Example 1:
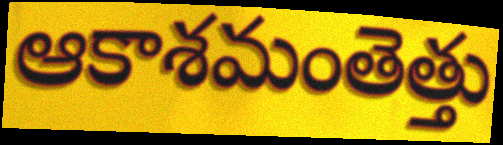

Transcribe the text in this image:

ఆకాశమంతెత్తు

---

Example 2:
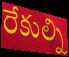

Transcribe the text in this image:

రేకుల్ని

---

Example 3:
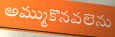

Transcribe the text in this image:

అమ్ముకొనవలెను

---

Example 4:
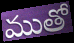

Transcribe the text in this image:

ముతో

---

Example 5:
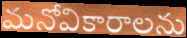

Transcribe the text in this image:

మనోవికారాలను